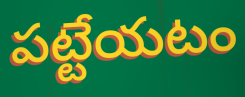
పట్టేయటం